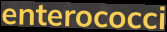
enterococci